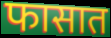
फासात